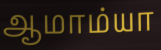
ஆமாம்யா